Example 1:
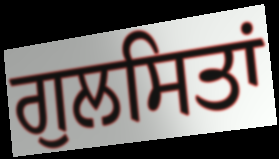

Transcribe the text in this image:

ਗੁਲਸਿਤਾਂ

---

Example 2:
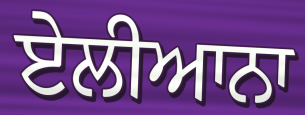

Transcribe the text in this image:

ਏਲੀਆਨਾ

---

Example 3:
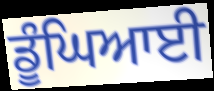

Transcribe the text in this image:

ਡੂੰਘਿਆਈ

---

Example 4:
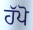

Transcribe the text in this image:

ਹੱਪੋ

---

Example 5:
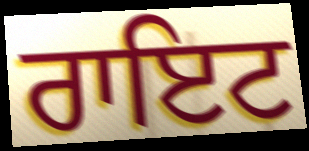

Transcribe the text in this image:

ਰਾਇਟ